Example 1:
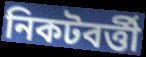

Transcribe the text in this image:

নিকটবর্ত্তী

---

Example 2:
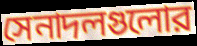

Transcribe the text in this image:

সেনাদলগুলোর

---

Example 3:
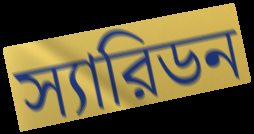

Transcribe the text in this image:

স্যারিডন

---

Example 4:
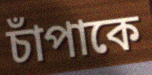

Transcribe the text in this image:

চাঁপাকে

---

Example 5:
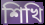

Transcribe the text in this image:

শিখি